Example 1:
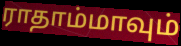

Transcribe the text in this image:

ராதாம்மாவும்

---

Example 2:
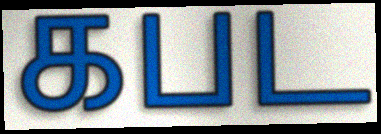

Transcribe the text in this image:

கபட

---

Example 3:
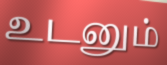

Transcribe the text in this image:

உடனும்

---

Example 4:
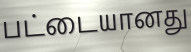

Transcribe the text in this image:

பட்டையானது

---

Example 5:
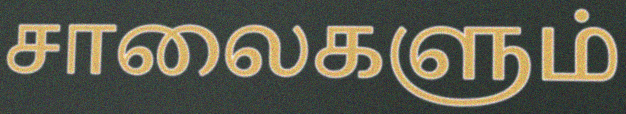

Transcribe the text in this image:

சாலைகளும்